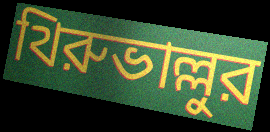
থিরুভাল্লুর